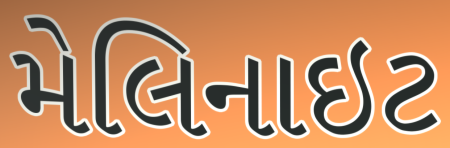
મેલિનાઇટ